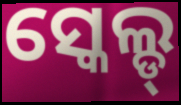
ସ୍କେଲ୍ଡ୍